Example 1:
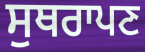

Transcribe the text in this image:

ਸੁਥਰਾਪਣ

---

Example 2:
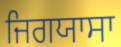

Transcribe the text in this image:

ਜਿਗਯਾਸਾ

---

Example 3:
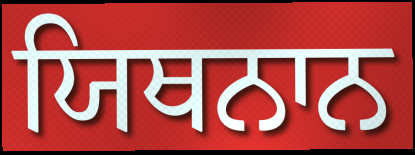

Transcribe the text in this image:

ਯਿਥਨਾਨ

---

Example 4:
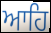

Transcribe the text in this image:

ਆਹਿ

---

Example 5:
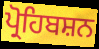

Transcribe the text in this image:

ਪ੍ਰੋਹਿਬਸ਼ਨ